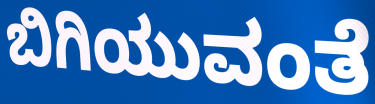
ಬಿಗಿಯುವಂತೆ